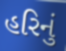
હરિનું